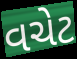
વચેટ